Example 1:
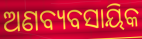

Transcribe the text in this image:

ଅଣବ୍ୟବସାୟିକ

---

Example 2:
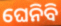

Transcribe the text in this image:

ଘେନିବି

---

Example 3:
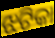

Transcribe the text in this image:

ଝଟିକା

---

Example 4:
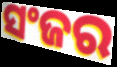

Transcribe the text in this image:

ସଂଜର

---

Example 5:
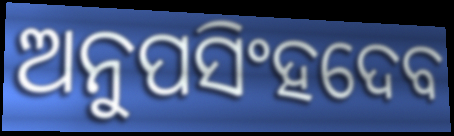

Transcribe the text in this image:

ଅନୁପସିଂହଦେବ